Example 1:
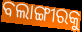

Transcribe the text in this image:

ବଲାଙ୍ଗୀରକୁ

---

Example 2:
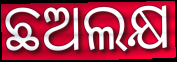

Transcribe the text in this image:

ଛଅଲକ୍ଷ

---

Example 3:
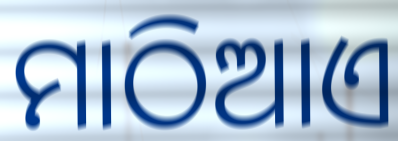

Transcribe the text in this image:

ମାଠିଆଏ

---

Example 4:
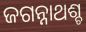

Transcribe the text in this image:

ଜଗନ୍ନାଥଶ୍ଚ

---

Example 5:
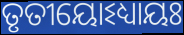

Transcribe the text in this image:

ତୃତୀୟୋଽଧ୍ୟାୟଃ